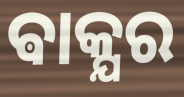
ଵାକ୍ଯର